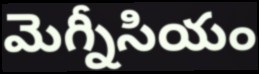
మెగ్నీసియం